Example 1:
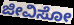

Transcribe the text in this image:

ಜೀವಿಸೋ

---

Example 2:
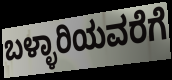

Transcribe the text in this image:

ಬಳ್ಳಾರಿಯವರೆಗೆ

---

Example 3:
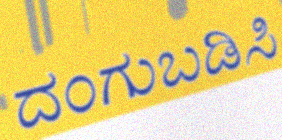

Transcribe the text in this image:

ದಂಗುಬಡಿಸಿ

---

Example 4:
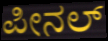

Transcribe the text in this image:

ಪೀನಲ್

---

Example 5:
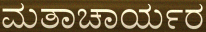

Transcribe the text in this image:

ಮತಾಚಾರ್ಯರ